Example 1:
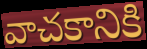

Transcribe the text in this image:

వాచకానికి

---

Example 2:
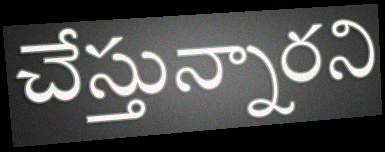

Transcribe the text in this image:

చేస్తున్నారని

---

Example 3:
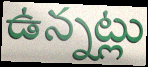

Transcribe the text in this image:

ఉన్నట్లు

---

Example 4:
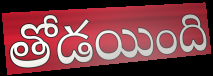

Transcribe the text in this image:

తోడయింది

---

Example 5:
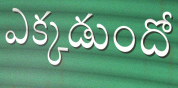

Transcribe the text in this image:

ఎక్కడుందో